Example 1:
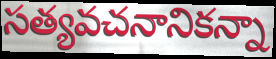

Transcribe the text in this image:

సత్యవచనానికన్నా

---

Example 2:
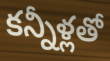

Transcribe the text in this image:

కన్నీళ్లతో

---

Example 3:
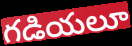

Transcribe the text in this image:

గడియలూ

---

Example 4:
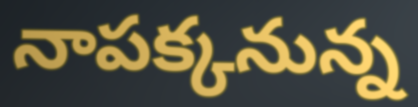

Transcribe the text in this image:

నాపక్కనున్న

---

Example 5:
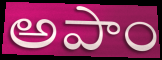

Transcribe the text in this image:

అపాం